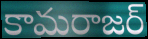
కామరాజర్